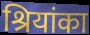
श्रियांका